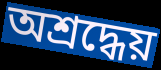
অশ্রদ্ধেয়